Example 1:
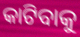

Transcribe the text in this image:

କାଟିବାକୁ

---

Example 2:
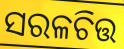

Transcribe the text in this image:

ସରଳଚିତ୍ତ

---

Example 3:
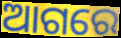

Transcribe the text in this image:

ଆଗରେ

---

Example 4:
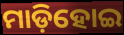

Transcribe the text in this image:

ମାଡ଼ିହୋଇ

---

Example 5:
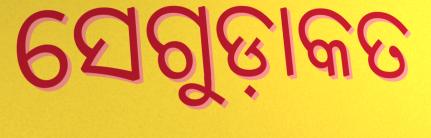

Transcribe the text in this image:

ସେଗୁଡ଼ାକତ